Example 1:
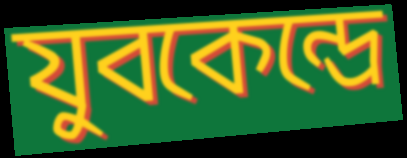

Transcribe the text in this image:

যুবকেন্দ্রে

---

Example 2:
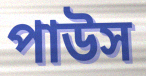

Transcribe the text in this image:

পাউস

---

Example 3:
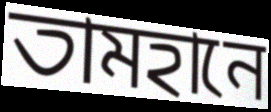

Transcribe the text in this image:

তামহানে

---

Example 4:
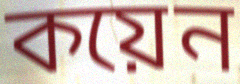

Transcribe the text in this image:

কয়েন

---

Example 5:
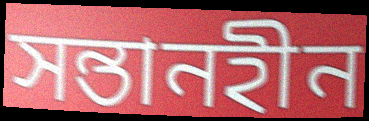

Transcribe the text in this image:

সন্তানহীন